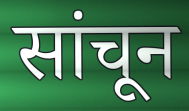
सांचून